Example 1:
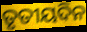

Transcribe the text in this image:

ତୃତୀୟଦିନ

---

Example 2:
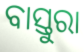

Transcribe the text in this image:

ବାସ୍ତୁରା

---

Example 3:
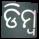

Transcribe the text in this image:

ଡିମ୍ବ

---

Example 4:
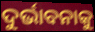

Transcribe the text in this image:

ଦୁର୍ଭାବନାକୁ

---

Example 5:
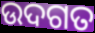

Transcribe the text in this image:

ଉଦଗତ